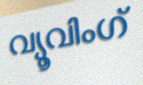
വ്യൂവിംഗ്